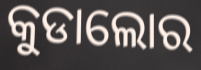
କୁଡାଲୋର